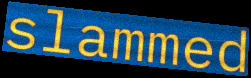
slammed